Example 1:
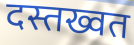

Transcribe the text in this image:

दस्तख्वत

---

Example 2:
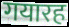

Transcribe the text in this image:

गयारह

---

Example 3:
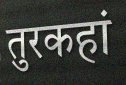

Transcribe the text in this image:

तुरकहां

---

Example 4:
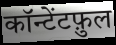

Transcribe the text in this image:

कॉन्टेंटफ़ुल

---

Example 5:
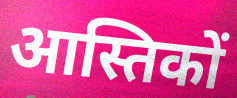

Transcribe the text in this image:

आस्तिकों